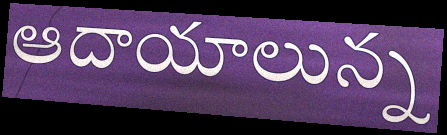
ఆదాయాలున్న